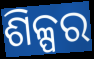
ଶିଳ୍ପର